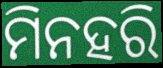
ମିନହରି